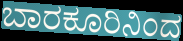
ಬಾರಕೂರಿನಿಂದ